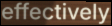
effectively